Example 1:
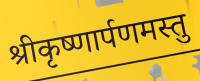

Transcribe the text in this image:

श्रीकृष्णार्पणमस्तु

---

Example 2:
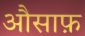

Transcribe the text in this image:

औसाफ़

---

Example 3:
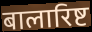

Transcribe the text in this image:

बालारिष्ट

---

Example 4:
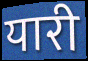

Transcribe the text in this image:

यारी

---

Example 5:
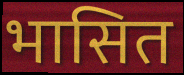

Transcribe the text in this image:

भासित